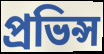
প্ৰভিন্স